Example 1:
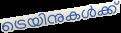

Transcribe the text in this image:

ട്രെയിനുകൾക്ക്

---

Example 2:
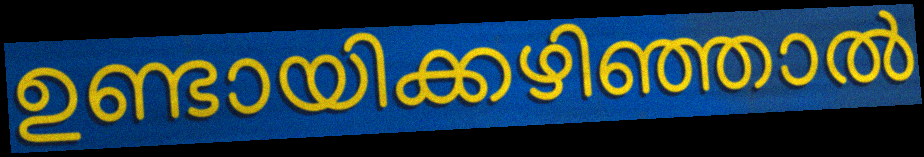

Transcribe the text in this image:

ഉണ്ടായിക്കഴിഞ്ഞാൽ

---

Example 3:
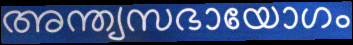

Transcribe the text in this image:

അന്ത്യസഭായോഗം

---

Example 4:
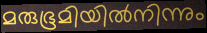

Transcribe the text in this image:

മരുഭൂമിയിൽനിന്നും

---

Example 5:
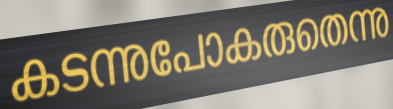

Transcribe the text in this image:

കടന്നുപോകരുതെന്നു